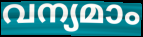
വന്യമാം